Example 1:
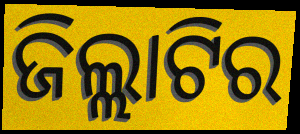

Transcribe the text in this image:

ଜିଲ୍ଲାଟିର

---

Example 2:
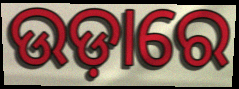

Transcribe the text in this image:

ଉଡ଼ାରେ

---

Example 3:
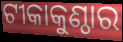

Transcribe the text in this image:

ଟୀକାକୁଣ୍ଠାର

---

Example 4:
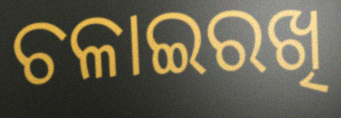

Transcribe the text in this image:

ଚଳାଇରଖି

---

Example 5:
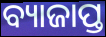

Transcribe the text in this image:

ବ୍ୟାଜାପ୍ତ